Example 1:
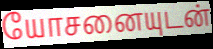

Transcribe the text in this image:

யோசனையுடன்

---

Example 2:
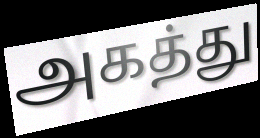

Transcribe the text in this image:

அகத்து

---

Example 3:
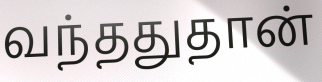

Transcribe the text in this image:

வந்ததுதான்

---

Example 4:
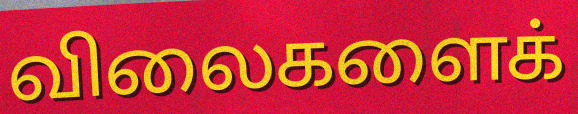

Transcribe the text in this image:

விலைகளைக்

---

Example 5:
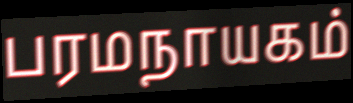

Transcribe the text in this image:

பரமநாயகம்